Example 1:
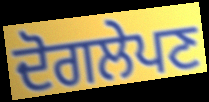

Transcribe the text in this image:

ਦੋਗਲੇਪਣ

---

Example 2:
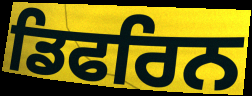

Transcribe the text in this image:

ਡਿਫਰਿਨ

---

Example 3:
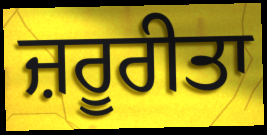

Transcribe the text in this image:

ਜ਼ਰੂਰੀਤਾ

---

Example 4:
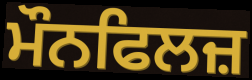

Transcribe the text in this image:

ਮੌਨਫਿਲਜ਼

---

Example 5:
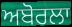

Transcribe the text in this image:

ਅਬੋਰਲਾ